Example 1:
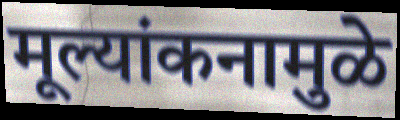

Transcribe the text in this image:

मूल्यांकनामुळे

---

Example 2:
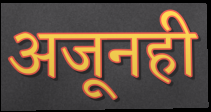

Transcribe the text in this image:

अजूनही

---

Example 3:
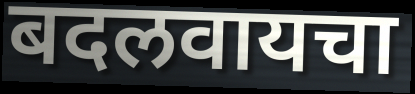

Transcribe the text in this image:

बदलवायचा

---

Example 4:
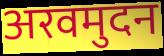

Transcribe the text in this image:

अरवमुदन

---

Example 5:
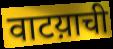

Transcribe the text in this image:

वाटय़ाची